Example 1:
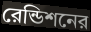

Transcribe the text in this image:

রেন্ডিশনের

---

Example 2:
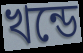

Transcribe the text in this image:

খন্ডে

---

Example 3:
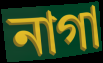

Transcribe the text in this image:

নাগা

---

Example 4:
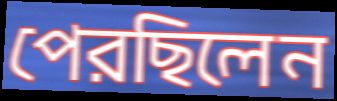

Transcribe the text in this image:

পেরছিলেন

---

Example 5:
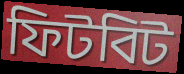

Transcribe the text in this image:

ফিটবিট